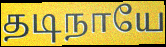
தடிநாயே